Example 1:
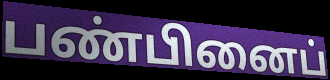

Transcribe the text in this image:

பண்பினைப்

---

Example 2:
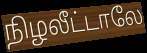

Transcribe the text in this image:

நிழலீட்டாலே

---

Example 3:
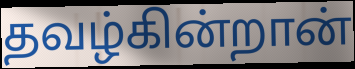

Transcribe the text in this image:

தவழ்கின்றான்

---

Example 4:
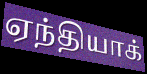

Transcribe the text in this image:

ஏந்தியாக்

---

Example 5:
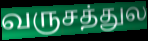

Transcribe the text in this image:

வருசத்துல